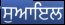
ਸੁਆਇਲ